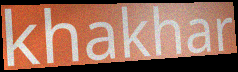
khakhar